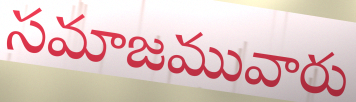
సమాజమువారు